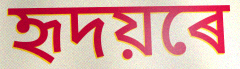
হৃদয়ৰে